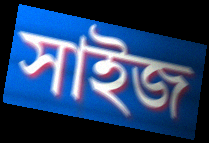
সাইজ